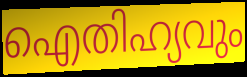
ഐതിഹ്യവും